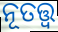
ନୂତତ୍ତ୍ଵ